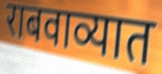
राबवाव्यात